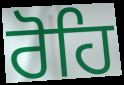
ਰੋਹਿ